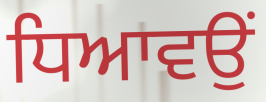
ਧਿਆਵਉਂ